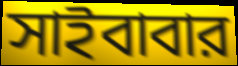
সাইবাবার